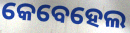
କେବେହେଲ